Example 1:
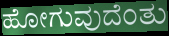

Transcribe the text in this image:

ಹೋಗುವುದೆಂತು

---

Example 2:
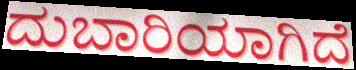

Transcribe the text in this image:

ದುಬಾರಿಯಾಗಿದೆ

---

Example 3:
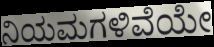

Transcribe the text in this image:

ನಿಯಮಗಳಿವೆಯೇ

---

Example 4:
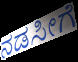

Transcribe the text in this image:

ನಡಸೀಗೆ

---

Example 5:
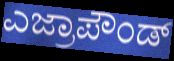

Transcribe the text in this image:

ಎಜ್ರಾಪೌಂಡ್